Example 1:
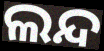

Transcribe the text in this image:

ଲନ୍ଦ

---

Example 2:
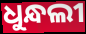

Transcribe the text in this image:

ଧୁନ୍ଧଲୀ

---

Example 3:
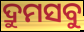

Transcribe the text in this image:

ଦ୍ରୁମସବୁ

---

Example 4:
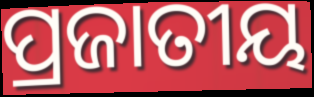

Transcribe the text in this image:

ପ୍ରଜାତୀୟ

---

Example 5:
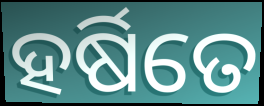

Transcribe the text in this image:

ହର୍ଷିତେ